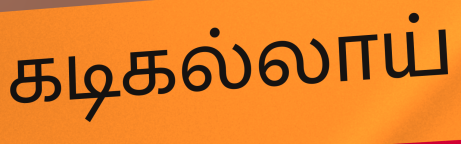
கடிகல்லாய்